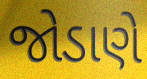
જોડાણે